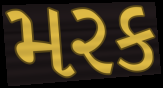
મરક